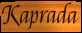
Kaprada